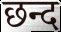
छन्द